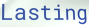
Lasting